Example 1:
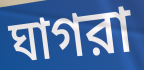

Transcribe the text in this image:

ঘাগরা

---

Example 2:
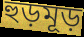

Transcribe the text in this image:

হুড়মূড়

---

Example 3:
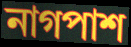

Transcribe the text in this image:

নাগপাশ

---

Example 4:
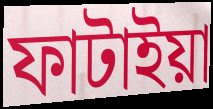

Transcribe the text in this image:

ফাটাইয়া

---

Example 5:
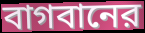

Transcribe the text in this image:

বাগবানের